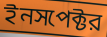
ইনসপেক্টর